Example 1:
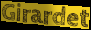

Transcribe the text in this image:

Girardet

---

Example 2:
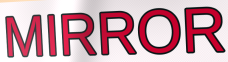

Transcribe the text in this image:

MIRROR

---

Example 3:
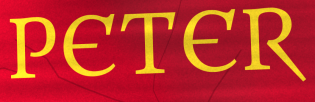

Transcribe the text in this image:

PETER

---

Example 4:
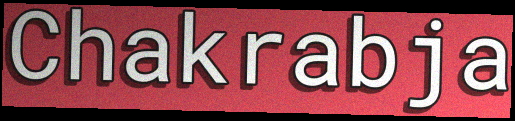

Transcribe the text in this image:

Chakrabja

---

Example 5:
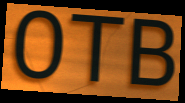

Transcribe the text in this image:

OTB